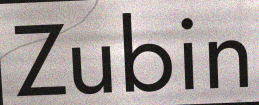
Zubin